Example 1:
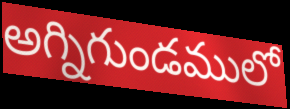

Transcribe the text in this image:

అగ్నిగుండములో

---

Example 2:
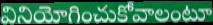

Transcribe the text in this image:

వినియోగించుకోవాలంటూ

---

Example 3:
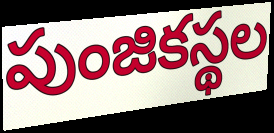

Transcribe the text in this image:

పుంజికస్థల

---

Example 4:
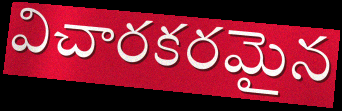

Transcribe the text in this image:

విచారకరమైన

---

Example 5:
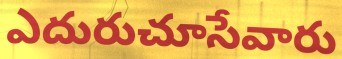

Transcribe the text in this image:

ఎదురుచూసేవారు